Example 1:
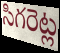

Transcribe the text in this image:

సిగరెట్ల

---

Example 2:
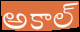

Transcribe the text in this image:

అకాల్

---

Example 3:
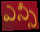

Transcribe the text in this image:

ఎన్సీ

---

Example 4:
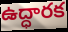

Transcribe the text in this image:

ఉద్ధారక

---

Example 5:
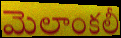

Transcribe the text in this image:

మెలాంకలీ